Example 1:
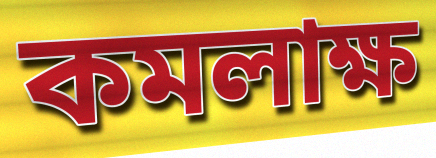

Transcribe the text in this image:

কমলাক্ষ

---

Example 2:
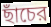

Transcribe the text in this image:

ছাঁচের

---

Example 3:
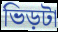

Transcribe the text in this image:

ভিড়টা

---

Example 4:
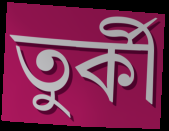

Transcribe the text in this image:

তুর্কী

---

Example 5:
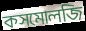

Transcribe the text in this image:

কসমোলজি